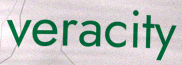
veracity